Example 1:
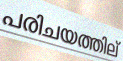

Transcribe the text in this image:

പരിചയത്തില്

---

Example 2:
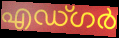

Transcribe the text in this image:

എഡ്ഗർ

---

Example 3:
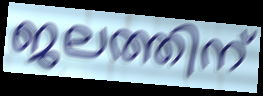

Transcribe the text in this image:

ജലത്തിന്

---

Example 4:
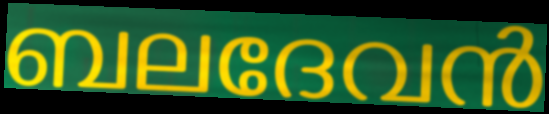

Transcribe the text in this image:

ബലദേവൻ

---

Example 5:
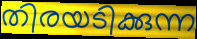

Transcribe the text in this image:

തിരയടിക്കുന്ന